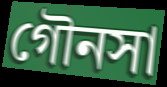
গৌনসা